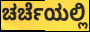
ಚರ್ಚೆಯಲ್ಲಿ